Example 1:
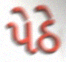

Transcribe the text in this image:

પેઠે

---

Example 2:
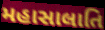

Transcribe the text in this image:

મહાસાલાતિ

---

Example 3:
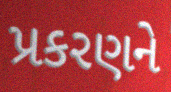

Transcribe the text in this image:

પ્રકરણને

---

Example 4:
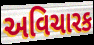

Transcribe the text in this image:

અવિચારક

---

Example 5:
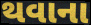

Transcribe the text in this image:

થવાના